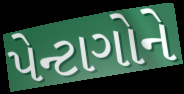
પેન્ટાગોને